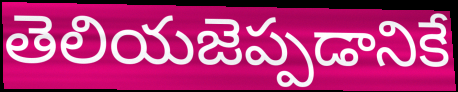
తెలియజెప్పడానికే